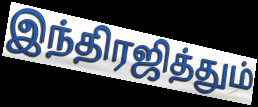
இந்திரஜித்தும்